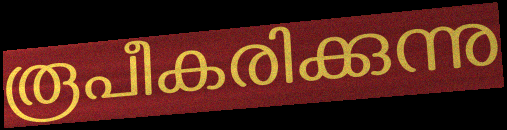
രൂപീകരിക്കുന്നു